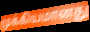
முக்கியமானது